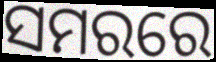
ସମରରେ